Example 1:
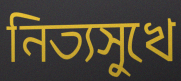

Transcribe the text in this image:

নিত্যসুখে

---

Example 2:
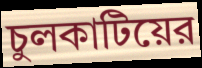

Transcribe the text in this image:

চুলকাটিয়ের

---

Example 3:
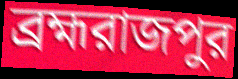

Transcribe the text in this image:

ব্রহ্মরাজপুর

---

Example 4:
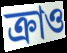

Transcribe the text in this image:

ক্রাও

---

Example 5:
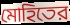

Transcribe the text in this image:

মোহিতের